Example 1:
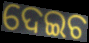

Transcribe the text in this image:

ଦେଇଚ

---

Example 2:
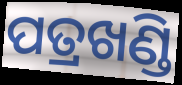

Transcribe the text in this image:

ପତ୍ରଖଣ୍ଡି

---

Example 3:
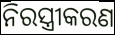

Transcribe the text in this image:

ନିରସ୍ତ୍ରୀକରଣ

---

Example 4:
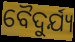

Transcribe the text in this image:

ବୈଦୁର୍ଯ୍ୟ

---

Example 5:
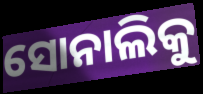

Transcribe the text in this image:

ସୋନାଲିକୁ